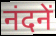
नंदनें